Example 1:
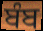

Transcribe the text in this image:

ਬੰਬ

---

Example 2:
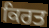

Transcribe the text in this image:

ਕਿਰਤ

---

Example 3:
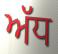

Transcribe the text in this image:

ਅੱਧ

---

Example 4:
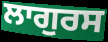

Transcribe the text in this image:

ਲਾਗੁਰਸ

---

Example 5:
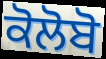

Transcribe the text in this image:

ਕੋਲੋਬੋ